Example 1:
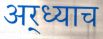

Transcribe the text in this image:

अर्ध्याच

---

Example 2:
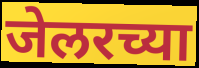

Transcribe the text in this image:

जेलरच्या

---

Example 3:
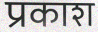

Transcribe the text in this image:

प्रकाश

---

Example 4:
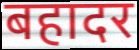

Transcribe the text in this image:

बहादर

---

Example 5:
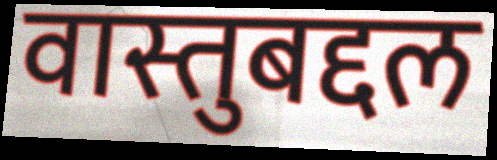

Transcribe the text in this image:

वास्तुबद्दल